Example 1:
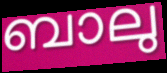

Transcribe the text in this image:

ബാലു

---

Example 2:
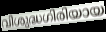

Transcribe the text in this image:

വിശുദ്ധഗിരിയായ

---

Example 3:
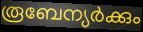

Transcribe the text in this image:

രൂബേന്യർക്കും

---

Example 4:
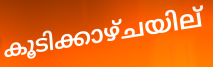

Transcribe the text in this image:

കൂടിക്കാഴ്ചയില്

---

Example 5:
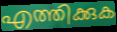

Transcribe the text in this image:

എത്തിക്കുക